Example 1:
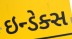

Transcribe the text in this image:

ઇન્ડેક્સ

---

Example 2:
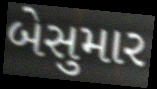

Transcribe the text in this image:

બેસુમાર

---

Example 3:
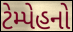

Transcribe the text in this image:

ટેમ્પેહનો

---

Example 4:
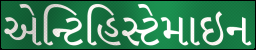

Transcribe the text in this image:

એન્ટિહિસ્ટેમાઇન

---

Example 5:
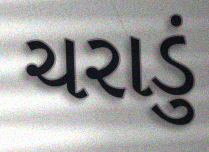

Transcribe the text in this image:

ચરાડું